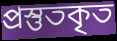
প্রস্তুতকৃত